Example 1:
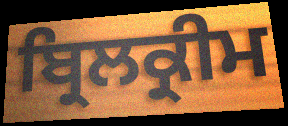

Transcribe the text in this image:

ਬ੍ਰਿਲਕ੍ਰੀਮ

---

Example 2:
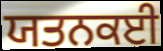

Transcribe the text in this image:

ਯਤਨਕਈ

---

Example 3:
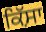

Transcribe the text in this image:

ਕ਼ਿੱਸਾ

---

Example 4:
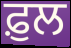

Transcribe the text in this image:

ਫ਼ੁਲ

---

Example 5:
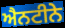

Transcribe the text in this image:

ਐਨਟੀਨੇ